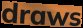
draws